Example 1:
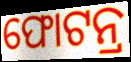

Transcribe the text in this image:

ଫୋଟନ୍ର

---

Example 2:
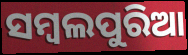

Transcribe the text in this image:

ସମ୍ୱଲପୁରିଆ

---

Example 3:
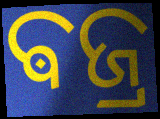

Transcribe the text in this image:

ଵଜ୍ର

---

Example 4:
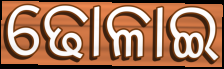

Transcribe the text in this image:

ଢୋଳାଇ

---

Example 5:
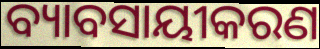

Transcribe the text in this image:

ବ୍ୟାବସାୟୀକରଣ